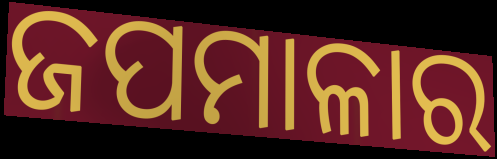
ଜପମାଳାର